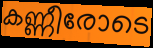
കണ്ണീരോടെ